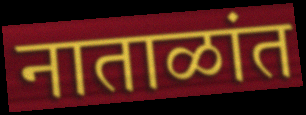
नाताळांत